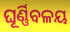
ଘୂର୍ଣ୍ଣିବଳୟ